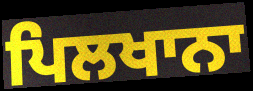
ਪਿਲਖਾਨਾ